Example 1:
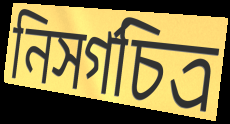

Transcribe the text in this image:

নিসর্গচিত্র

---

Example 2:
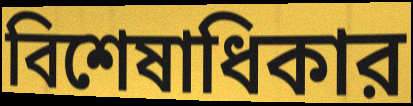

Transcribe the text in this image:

বিশেষাধিকার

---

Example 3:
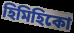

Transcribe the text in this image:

হিমিহিকো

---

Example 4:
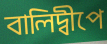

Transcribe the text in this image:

বালিদ্বীপে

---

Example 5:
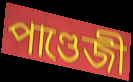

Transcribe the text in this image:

পাণ্ডেজী